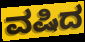
ವಷಿದ